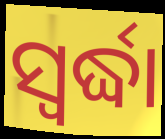
ସ୍ଵର୍ଦ୍ଧା